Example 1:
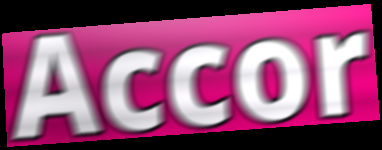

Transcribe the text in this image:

Accor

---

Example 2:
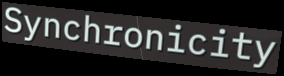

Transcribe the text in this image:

Synchronicity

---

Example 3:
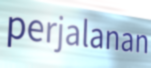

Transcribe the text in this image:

perjalanan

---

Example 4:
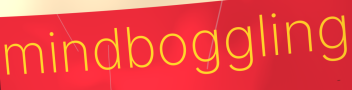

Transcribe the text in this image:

mindboggling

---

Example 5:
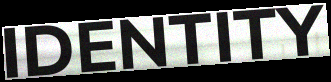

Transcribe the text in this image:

IDENTITY